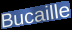
Bucaille